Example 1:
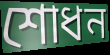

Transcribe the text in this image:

শোধন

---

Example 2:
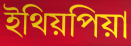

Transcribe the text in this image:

ইথিয়পিয়া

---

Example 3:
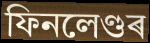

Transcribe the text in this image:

ফিনলেণ্ডৰ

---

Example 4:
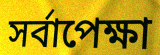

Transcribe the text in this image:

সৰ্বাপেক্ষা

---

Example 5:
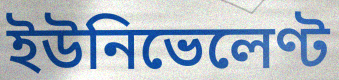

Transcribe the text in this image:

ইউনিভেলেণ্ট